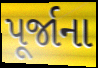
પૂર્જાના